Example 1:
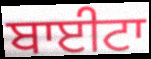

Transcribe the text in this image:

ਬਾਈਟਾ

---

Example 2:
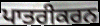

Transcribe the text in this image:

ਪਾਤਰੀਕਰਨ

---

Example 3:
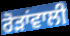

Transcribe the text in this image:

ਰੋੜਾਂਵਾਲੀ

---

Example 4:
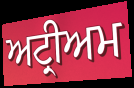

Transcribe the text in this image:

ਅਟ੍ਰੀਅਮ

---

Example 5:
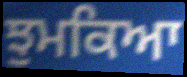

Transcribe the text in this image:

ਝੁਮਕਿਆ